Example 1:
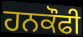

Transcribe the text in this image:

ਹਨਕੌਫੀ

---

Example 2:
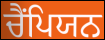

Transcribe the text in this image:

ਚੈੰਪਿਯਨ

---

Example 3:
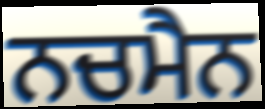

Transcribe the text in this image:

ਨਚਮੈਨ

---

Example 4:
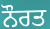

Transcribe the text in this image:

ਨੌਰਤ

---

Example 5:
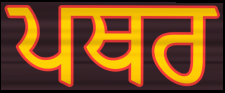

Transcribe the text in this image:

ਪਥਰ